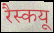
रैस्कयू